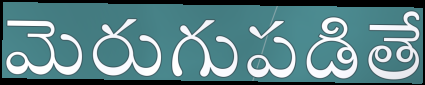
మెరుగుపడితే